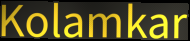
Kolamkar